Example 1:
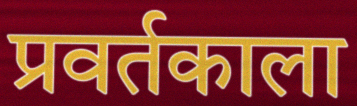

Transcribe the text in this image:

प्रवर्तकाला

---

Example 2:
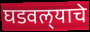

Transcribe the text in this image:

घडवल्याचे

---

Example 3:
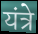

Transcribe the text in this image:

यंत्रे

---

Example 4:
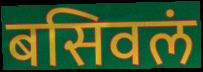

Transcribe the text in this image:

बसिवलं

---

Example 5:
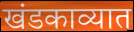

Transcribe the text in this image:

खंडकाव्यात